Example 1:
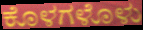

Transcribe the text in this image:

ಕೊಳಗಳೊಳು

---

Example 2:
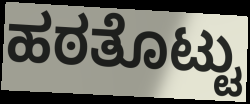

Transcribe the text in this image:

ಹಠತೊಟ್ಟು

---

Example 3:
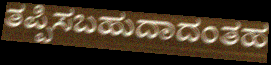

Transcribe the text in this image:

ತಪ್ಪಿಸಬಹುದಾದಂತಹ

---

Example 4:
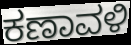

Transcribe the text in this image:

ಕಣಾವಳಿ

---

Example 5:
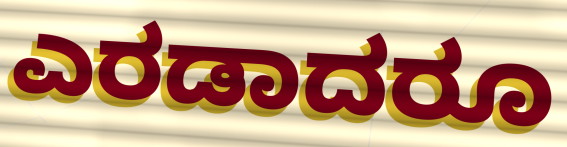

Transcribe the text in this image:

ಎರಡಾದರೂ